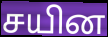
சயின